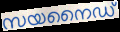
സയനൈഡ്